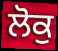
ਲੋਕੁ